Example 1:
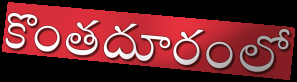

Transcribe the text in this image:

కొంతదూరంలో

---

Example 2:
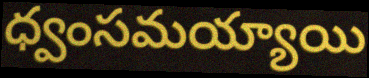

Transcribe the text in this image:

ధ్వంసమయ్యాయి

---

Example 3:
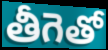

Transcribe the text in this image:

తీగెతో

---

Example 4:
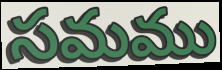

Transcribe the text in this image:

సమము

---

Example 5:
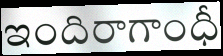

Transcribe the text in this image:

ఇందిరాగాంధీ